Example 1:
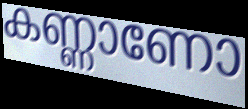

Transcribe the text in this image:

കണ്ണാണോ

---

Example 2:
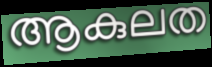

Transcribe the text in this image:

ആകുലത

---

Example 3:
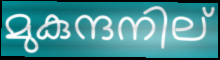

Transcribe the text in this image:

മുകുന്ദനില്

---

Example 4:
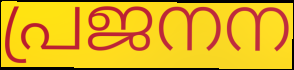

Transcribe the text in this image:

പ്രജനന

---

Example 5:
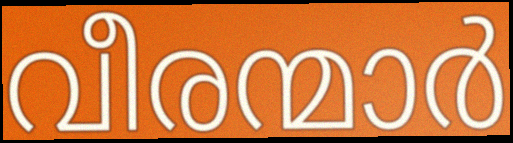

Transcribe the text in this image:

വീരന്മാർ